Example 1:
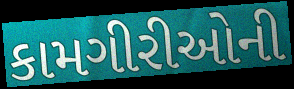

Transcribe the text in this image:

કામગીરીઓની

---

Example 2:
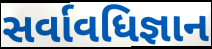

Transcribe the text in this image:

સર્વાવધિજ્ઞાન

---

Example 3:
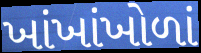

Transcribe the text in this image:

ખાંખાંખોળાં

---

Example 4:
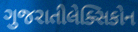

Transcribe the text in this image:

ગુજરાતીલેક્સિકોન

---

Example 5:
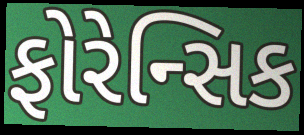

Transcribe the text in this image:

ફોરેન્સિક